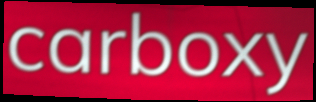
carboxy